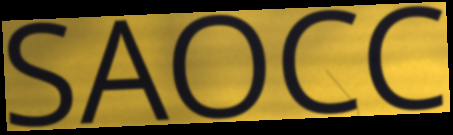
SAOCC